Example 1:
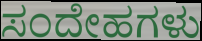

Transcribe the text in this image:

ಸಂದೇಹಗಳು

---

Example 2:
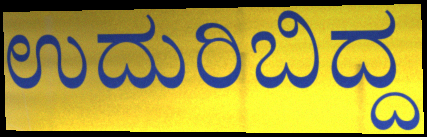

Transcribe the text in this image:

ಉದುರಿಬಿದ್ದ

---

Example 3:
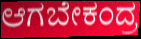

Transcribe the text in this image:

ಆಗಬೇಕಂದ್ರ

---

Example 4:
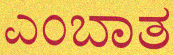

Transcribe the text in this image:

ಎಂಬಾತ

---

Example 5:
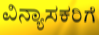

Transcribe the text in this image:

ವಿನ್ಯಾಸಕರಿಗೆ